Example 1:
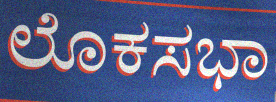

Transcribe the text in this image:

ಲೊಕಸಭಾ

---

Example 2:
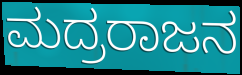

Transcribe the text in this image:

ಮದ್ರರಾಜನ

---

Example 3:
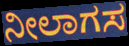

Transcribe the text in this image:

ನೀಲಾಗಸ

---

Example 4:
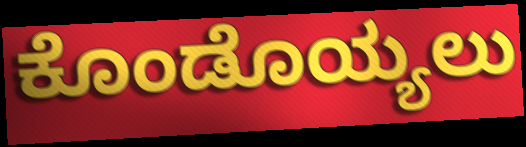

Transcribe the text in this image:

ಕೊಂಡೊಯ್ಯಲು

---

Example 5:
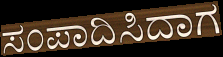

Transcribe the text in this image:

ಸಂಪಾದಿಸಿದಾಗ